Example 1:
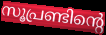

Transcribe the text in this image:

സൂപ്രണ്ടിന്റെ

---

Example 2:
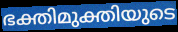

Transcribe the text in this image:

ഭക്തിമുക്തിയുടെ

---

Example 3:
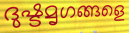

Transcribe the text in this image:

ദുഷ്ടമൃഗങ്ങളെ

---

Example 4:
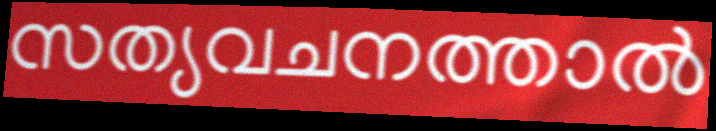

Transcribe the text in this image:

സത്യവചനത്താൽ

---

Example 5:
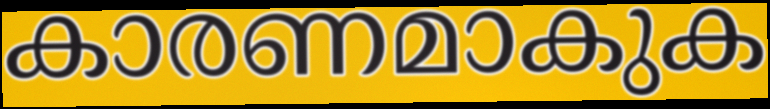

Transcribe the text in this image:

കാരണമാകുക